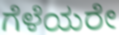
ಗೆಳೆಯರೇ